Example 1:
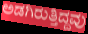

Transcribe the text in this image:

ಅಡಗಿರುತ್ತಿದ್ದವು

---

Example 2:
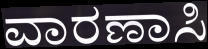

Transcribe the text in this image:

ವಾರಣಾಸಿ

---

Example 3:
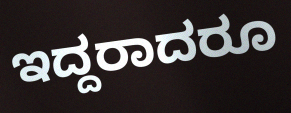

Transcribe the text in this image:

ಇದ್ದರಾದರೂ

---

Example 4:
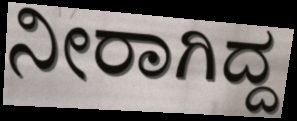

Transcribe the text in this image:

ನೀರಾಗಿದ್ದ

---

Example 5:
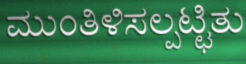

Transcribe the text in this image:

ಮುಂತಿಳಿಸಲ್ಪಟ್ಟಿತು